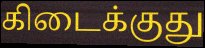
கிடைக்குது